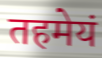
तहमेयं